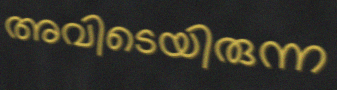
അവിടെയിരുന്ന